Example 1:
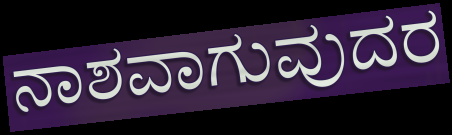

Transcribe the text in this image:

ನಾಶವಾಗುವುದರ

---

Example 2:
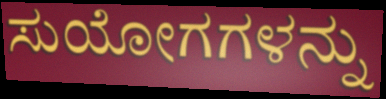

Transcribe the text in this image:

ಸುಯೋಗಗಳನ್ನು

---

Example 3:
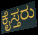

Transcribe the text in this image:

ಕೈಸ್ತರು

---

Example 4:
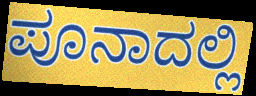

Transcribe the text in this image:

ಪೂನಾದಲ್ಲಿ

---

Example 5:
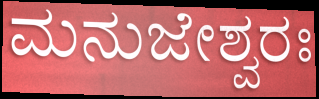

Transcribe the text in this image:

ಮನುಜೇಶ್ವರಃ